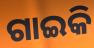
ଗାଇକି